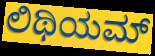
ಲಿಥಿಯಮ್